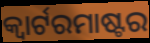
କ୍ୱାର୍ଟରମାଷ୍ଟର